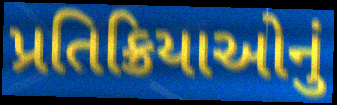
પ્રતિક્રિયાઓનું